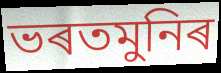
ভৰতমুনিৰ